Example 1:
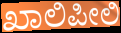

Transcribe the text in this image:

ಖಾಲಿಪೀಲಿ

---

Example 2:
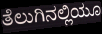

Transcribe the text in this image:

ತೆಲುಗಿನಲ್ಲಿಯೂ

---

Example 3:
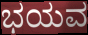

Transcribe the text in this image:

ಭಯವ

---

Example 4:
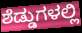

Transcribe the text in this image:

ಶೆಡ್ಡುಗಳಲ್ಲಿ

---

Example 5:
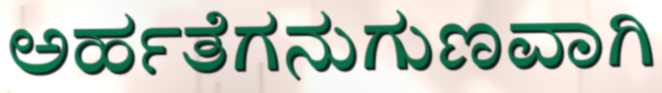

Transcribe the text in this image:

ಅರ್ಹತೆಗನುಗುಣವಾಗಿ